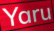
Yaru